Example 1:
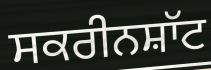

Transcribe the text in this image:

ਸਕਰੀਨਸ਼ਾੱਟ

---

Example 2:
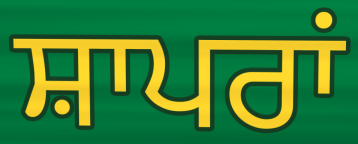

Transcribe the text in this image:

ਸ਼ਾਪਰਾਂ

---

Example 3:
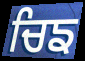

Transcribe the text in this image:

ਚਿਙ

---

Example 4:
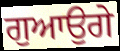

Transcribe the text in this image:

ਗੁਆਉਗੇ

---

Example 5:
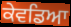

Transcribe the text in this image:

ਕੇਵਡਿਆ